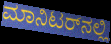
ಮಾನಿಟರ್‌ನಲ್ಲಿ